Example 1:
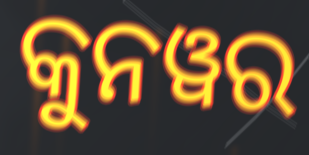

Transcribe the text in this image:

କୁନୱର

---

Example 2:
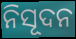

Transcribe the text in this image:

ନିସୂଦନ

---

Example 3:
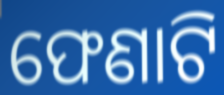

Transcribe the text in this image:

ଫେଣାଟି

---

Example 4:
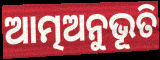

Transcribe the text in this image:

ଆତ୍ମଅନୁଭୂତି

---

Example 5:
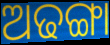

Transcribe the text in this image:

ଅଢଙ୍ଗା